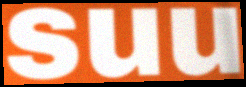
suu